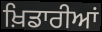
ਖ਼ਿਡਾਰੀਆਂ